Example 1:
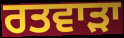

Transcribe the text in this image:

ਰਤਵਾੜਾ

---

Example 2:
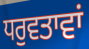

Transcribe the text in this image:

ਧਰੁਵਤਾਵਾਂ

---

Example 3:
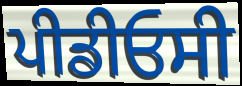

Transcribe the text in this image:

ਪੀਡੀਓਸੀ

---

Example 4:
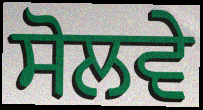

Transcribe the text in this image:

ਸੋਲਵੇ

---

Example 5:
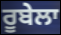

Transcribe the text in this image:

ਰੂਬੇਲਾ